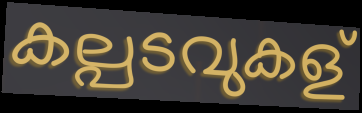
കല്പടവുകള്